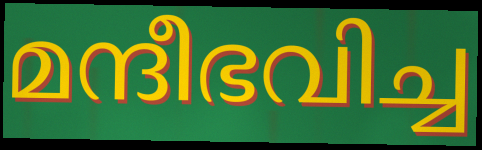
മന്ദീഭവിച്ച